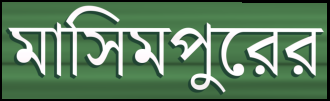
মাসিমপুরের